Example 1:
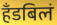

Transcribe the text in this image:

हँडबिलं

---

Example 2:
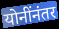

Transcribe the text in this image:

योनींनंतर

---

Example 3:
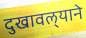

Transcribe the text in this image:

दुखावल्याने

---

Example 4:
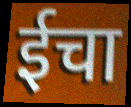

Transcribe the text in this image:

ईचा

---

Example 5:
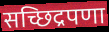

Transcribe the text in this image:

सच्छिद्रपणा